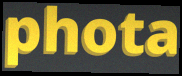
phota